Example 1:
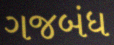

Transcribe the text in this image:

ગજબંધ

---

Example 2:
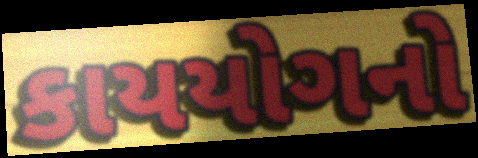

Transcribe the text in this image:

કાયયોગનો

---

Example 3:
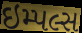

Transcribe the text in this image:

ઇમ્પલ્સ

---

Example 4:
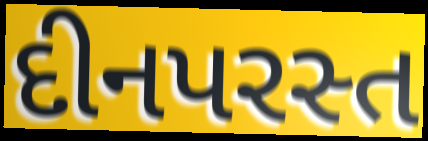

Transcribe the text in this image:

દીનપરસ્ત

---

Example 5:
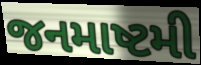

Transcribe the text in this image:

જનમાષ્ટમી